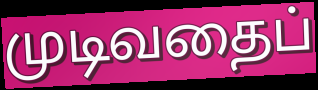
முடிவதைப்